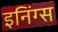
इनिंग्स